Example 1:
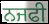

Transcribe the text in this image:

ਨਜਫੀ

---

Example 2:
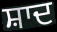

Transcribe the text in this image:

ਸ਼ਾਦ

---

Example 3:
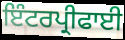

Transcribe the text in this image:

ਇੰਟਰਪ੍ਰੀਫਾਈ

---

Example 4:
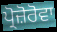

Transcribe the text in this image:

ਪ੍ਰੋਜ਼ੋਰੋਵਾ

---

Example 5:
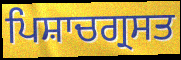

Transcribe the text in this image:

ਪਿਸ਼ਾਚਗ੍ਰਸਤ